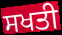
ਸਖਤੀ